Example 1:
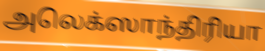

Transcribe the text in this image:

அலெக்ஸாந்திரியா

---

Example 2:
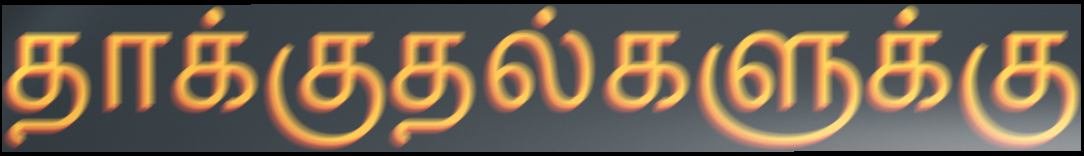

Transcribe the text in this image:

தாக்குதல்களுக்கு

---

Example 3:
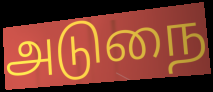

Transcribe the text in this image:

அடுநை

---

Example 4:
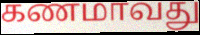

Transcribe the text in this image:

கணமாவது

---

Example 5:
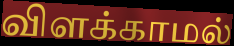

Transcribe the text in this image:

விளக்காமல்